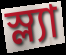
স্ল্যা